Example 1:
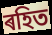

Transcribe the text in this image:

ৰহিত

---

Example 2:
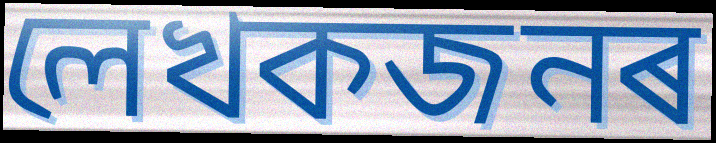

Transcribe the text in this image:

লেখকজনৰ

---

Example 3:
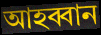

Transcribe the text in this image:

আহব্বান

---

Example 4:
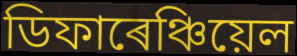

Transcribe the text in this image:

ডিফাৰেঞ্চিয়েল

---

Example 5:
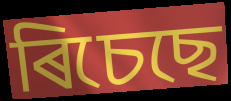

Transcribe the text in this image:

ৰিচেছে